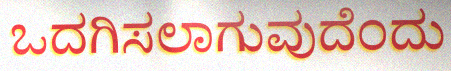
ಒದಗಿಸಲಾಗುವುದೆಂದು